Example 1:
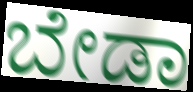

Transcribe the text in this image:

ಬೇಡಾ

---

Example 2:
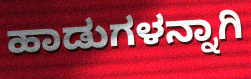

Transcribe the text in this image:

ಹಾಡುಗಳನ್ನಾಗಿ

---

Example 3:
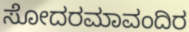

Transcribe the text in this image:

ಸೋದರಮಾವಂದಿರ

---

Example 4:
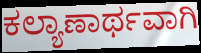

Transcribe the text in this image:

ಕಲ್ಯಾಣಾರ್ಥವಾಗಿ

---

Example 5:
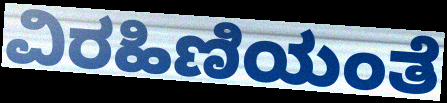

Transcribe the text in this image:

ವಿರಹಿಣಿಯಂತೆ